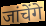
जांचेंगे